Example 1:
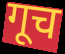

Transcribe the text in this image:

गूच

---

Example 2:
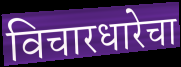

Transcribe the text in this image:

विचारधारेचा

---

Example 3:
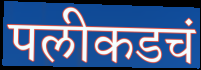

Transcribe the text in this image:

पलीकडचं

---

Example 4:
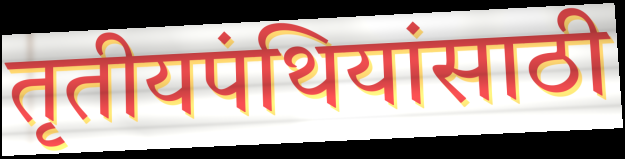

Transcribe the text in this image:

तृतीयपंथियांसाठी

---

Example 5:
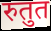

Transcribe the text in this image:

रुतुत